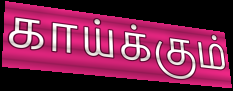
காய்க்கும்